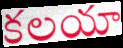
కలయా